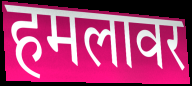
हमलावर